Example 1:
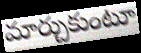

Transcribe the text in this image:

మార్చుకుంటూ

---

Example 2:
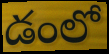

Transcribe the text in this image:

డంలో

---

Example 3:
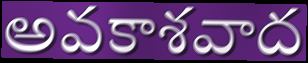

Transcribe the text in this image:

అవకాశవాద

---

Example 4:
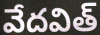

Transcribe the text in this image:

వేదవిత్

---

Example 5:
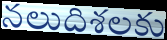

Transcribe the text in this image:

నలుదిశలకు